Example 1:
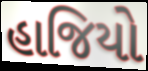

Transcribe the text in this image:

હાજિયો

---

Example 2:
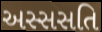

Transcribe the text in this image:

અસ્સસતિ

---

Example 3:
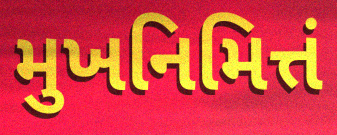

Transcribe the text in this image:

મુખનિમિત્તં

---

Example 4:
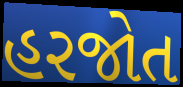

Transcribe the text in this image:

હરજોત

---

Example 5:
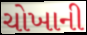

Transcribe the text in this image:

ચોખાની